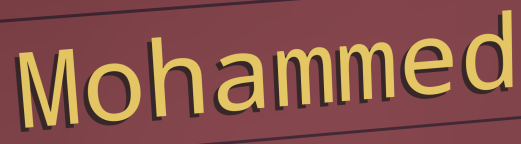
Mohammed